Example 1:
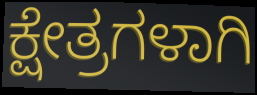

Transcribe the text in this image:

ಕ್ಷೇತ್ರಗಳಾಗಿ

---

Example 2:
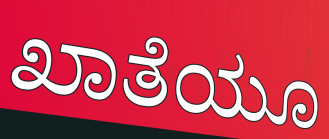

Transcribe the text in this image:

ಖಾತೆಯೂ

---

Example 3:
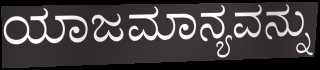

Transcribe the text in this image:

ಯಾಜಮಾನ್ಯವನ್ನು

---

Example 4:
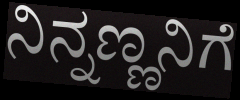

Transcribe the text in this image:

ನಿನ್ನಣ್ಣನಿಗೆ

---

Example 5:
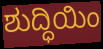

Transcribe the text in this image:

ಶುದ್ಧಿಯಿಂ